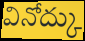
వినోద్కు